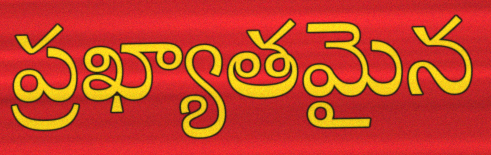
ప్రఖ్యాతమైన